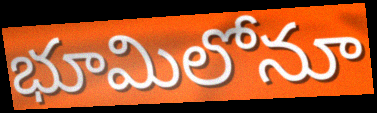
భూమిలోనూ